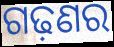
ଗଢ଼ଣର